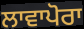
ਲਾਵਾਪੋਰਾ